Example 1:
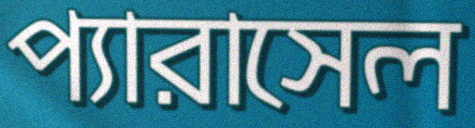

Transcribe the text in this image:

প্যারাসেল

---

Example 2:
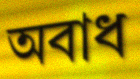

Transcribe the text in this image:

অবাধ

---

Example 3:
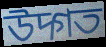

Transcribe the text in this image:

উদ্গত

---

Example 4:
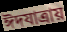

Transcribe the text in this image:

ঈদযাত্রায়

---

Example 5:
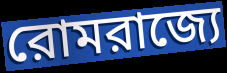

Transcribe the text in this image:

রোমরাজ্যে